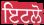
ਇਟਲੋ